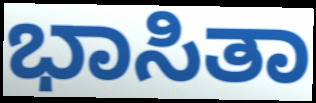
ಭಾಸಿತಾ